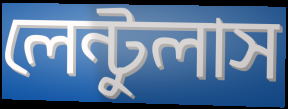
লেন্টুলাস